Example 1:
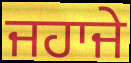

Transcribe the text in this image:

ਜਹਾਜੇ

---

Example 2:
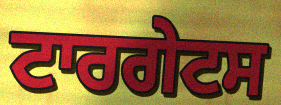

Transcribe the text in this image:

ਟਾਰਗੇਟਸ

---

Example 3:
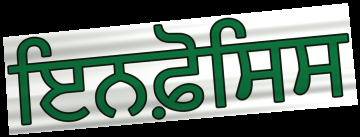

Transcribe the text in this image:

ਇਨਫ਼ੋਸਿਸ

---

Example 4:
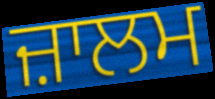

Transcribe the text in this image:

ਜ਼ਾਲਮ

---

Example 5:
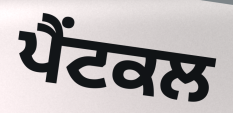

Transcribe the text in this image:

ਪੈਂਟਕਲ